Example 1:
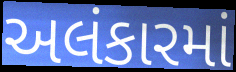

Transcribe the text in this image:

અલંકારમાં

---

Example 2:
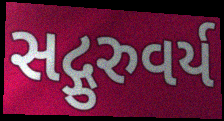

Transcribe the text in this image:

સદ્ગુરુવર્ય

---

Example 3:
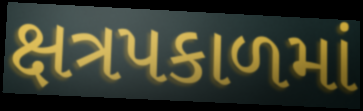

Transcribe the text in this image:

ક્ષત્રપકાળમાં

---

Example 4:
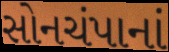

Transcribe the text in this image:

સોનચંપાનાં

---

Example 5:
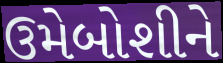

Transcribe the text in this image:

ઉમેબોશીને